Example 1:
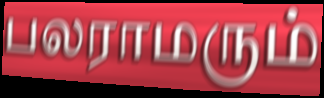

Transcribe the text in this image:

பலராமரும்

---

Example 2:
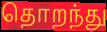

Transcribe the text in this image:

தொறந்து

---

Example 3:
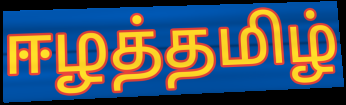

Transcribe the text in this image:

ஈழத்தமிழ்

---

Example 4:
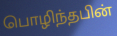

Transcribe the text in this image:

பொழிந்தபின்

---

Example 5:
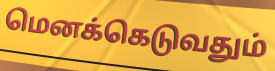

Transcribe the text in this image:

மெனக்கெடுவதும்